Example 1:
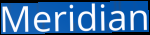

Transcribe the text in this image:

Meridian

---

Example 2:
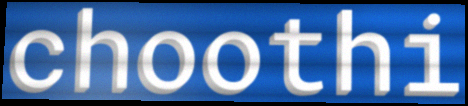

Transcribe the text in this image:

choothi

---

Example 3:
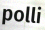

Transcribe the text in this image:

polli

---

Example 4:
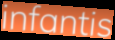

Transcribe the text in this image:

infantis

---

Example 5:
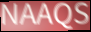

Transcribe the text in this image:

NAAQS